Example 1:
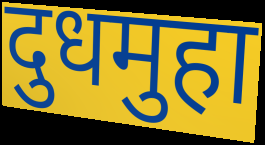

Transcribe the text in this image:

दुधमुहा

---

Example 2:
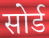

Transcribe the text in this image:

सोर्ड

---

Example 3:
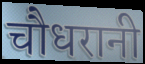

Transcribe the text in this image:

चौधरानी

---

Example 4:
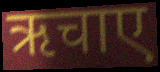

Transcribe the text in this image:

ऋचाए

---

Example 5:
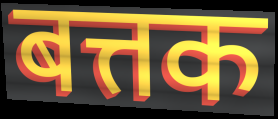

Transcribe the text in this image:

बत्तक